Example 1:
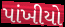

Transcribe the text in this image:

પાંખીયો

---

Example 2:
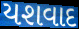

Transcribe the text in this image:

યશવાદ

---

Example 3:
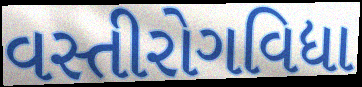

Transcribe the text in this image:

વસ્તીરોગવિદ્યા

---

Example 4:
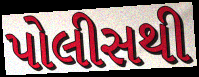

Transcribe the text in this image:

પોલીસથી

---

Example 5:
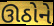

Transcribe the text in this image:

ઊઠોને